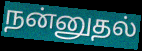
நன்னுதல்